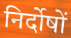
निर्दोषों